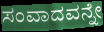
ಸಂವಾದವನ್ನೇ